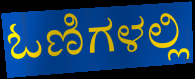
ಓಣಿಗಳಲ್ಲಿ